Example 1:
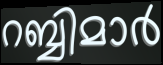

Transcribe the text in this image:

റബ്ബിമാർ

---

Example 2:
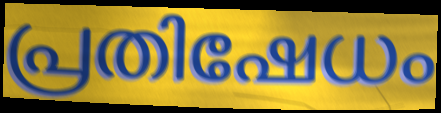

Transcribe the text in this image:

പ്രതിഷേധം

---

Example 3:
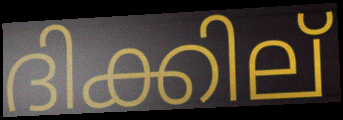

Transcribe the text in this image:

ദിക്കില്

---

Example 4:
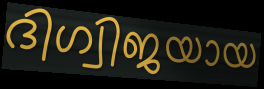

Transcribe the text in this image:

ദിഗ്വിജയായ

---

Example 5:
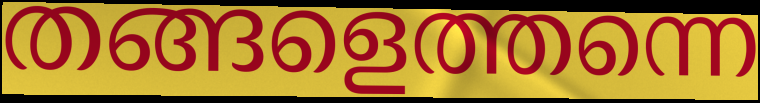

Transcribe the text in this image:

തങ്ങളെത്തന്നെ